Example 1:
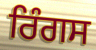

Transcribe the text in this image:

ਰਿੰਗਸ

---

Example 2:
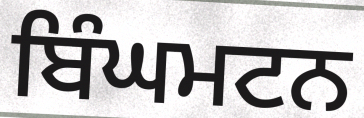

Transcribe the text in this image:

ਬਿੰਘਮਟਨ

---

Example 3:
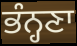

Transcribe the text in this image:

ਭੰਨ੍ਹਣਾ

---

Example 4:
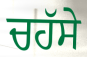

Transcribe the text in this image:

ਚਹੱਸੇ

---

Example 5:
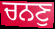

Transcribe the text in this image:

ਚਨਣੁ